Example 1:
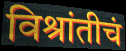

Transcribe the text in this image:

विश्रांतीचं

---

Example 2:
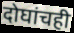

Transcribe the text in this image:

दोघांचही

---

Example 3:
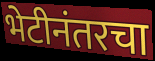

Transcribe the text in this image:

भेटीनंतरचा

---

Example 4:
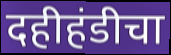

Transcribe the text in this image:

दहीहंडीचा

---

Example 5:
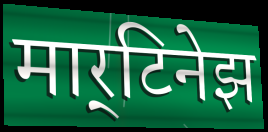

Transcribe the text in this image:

मार्टिनेझ